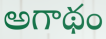
అగాథం